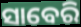
ସାବେରି